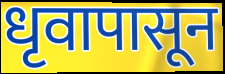
धृवापासून